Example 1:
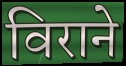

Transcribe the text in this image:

विराने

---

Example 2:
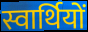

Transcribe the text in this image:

स्वार्थियों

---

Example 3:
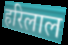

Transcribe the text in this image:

हरिलाल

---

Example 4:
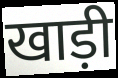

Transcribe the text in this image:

खाड़ी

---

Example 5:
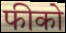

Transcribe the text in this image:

फीको